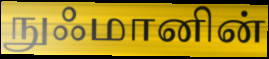
நுஃமானின்